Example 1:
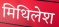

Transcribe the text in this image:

मिथिलेश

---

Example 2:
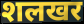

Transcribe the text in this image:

शलखर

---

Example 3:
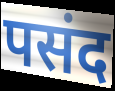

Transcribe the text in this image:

पसंद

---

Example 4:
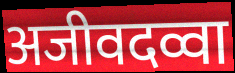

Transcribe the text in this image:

अजीवदव्वा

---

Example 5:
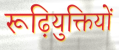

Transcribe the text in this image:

रूढ़ियुक्तियों